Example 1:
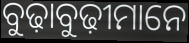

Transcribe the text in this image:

ବୁଢ଼ାବୁଢ଼ୀମାନେ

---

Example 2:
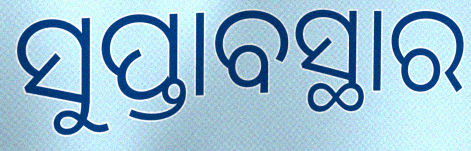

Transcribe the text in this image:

ସୁପ୍ତାବସ୍ଥାର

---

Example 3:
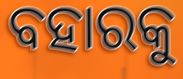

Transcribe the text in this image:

ବହାରକୁ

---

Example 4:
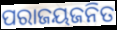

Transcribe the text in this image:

ପରାଜୟଜନିତ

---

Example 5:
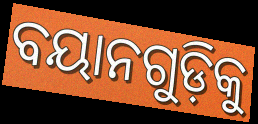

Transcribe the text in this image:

ବୟାନଗୁଡ଼ିକୁ